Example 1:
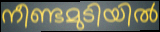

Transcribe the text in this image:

നീണ്ടമുടിയിൽ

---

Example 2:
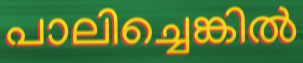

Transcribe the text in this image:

പാലിച്ചെങ്കിൽ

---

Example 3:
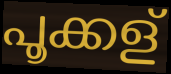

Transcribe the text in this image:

പൂക്കള്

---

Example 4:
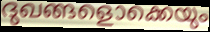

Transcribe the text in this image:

ദുഖങ്ങളൊക്കെയും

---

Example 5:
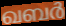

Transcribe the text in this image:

ഖബർ